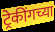
ट्रेकींगच्या